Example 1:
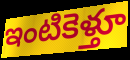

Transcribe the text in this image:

ఇంటికెళ్తూ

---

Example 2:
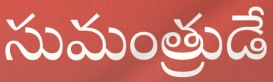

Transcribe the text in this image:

సుమంత్రుడే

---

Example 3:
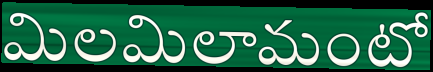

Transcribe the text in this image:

మిలమిలామంటో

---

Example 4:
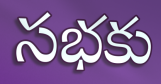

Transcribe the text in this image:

సభకు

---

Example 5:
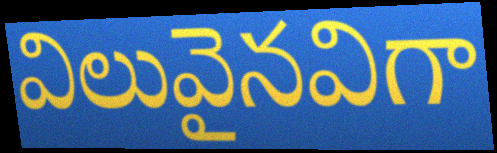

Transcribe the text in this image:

విలువైనవిగా